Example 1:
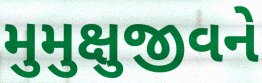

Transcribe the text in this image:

મુમુક્ષુજીવને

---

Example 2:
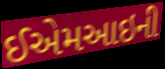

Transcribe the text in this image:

ઈએમઆઇની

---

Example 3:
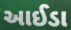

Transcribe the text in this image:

આઈડા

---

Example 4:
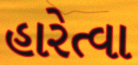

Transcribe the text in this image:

હારેત્વા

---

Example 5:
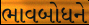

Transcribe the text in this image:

ભાવબોધને